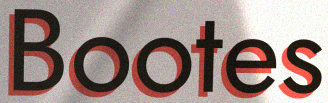
Bootes